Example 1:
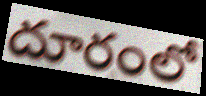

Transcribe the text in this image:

దూరంలో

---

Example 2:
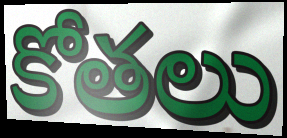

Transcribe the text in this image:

కోతలు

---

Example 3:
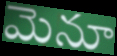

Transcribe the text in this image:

మెనూ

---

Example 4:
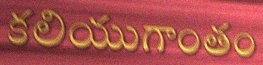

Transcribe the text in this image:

కలియుగాంతం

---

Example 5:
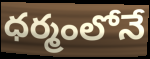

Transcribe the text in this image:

ధర్మంలోనే